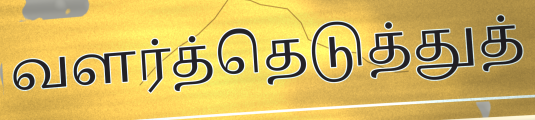
வளர்த்தெடுத்துத்